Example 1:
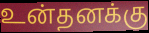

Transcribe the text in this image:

உன்தனக்கு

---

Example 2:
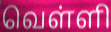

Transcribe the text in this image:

வெள்ளி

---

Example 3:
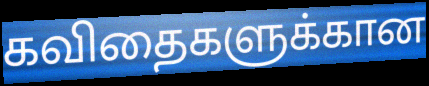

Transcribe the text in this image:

கவிதைகளுக்கான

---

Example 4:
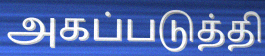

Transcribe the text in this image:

அகப்படுத்தி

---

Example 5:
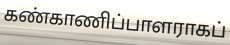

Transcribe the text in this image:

கண்காணிப்பாளராகப்